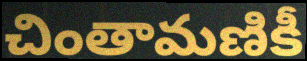
చింతామణికీ